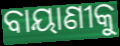
ବାୟାଣୀକୁ